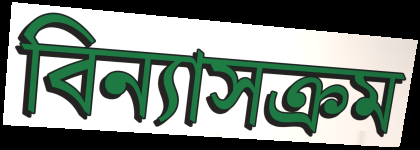
বিন্যাসক্রম